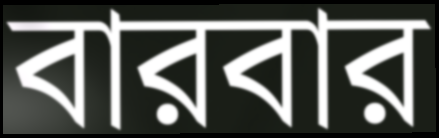
বারবার